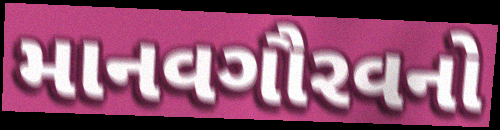
માનવગૌરવનો